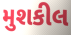
મુશકીલ